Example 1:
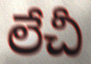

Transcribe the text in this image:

లేచీ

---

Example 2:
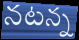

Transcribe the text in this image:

నటన్న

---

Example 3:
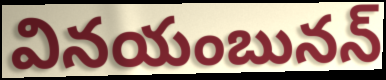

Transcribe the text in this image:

వినయంబునన్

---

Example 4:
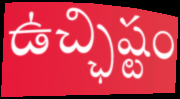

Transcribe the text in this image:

ఉచ్ఛిష్టం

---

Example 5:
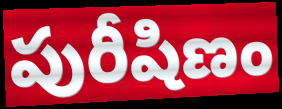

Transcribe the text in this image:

పురీషిణం